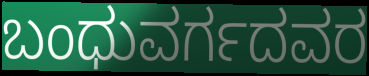
ಬಂಧುವರ್ಗದವರ